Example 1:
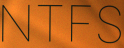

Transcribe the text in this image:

NTFS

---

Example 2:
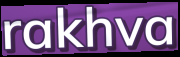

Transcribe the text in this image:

rakhva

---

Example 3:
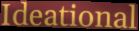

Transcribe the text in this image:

Ideational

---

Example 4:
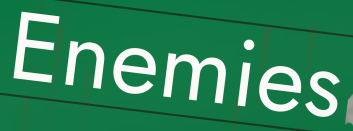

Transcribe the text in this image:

Enemies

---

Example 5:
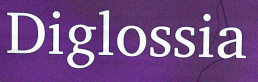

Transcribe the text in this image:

Diglossia